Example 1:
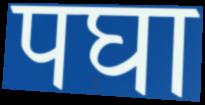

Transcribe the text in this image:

पघा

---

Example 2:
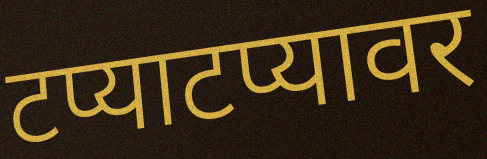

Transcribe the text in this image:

टप्याटप्यावर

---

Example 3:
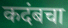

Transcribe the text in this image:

कदंबचा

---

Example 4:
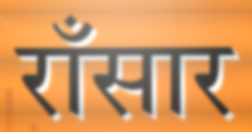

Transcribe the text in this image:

राँसार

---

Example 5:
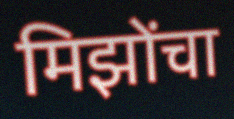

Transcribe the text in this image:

मिझोंचा